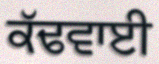
ਕੱਢਵਾਈ